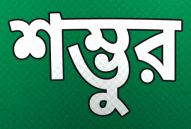
শম্ভুর